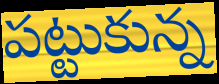
పట్టుకున్న